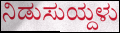
ನಿಡುಸುಯ್ದಳು